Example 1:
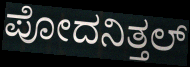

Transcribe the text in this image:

ಪೋದನಿತ್ತಲ್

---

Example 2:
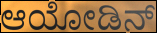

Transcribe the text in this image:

ಆಯೋಡಿನ್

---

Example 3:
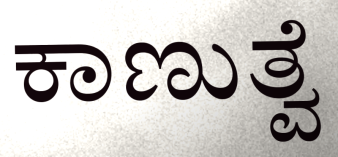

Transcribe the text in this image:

ಕಾಣುತ್ವೆ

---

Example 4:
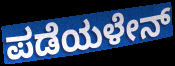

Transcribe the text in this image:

ಪಡೆಯಳೇನ್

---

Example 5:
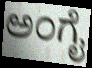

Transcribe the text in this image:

ಅಂಗೈ